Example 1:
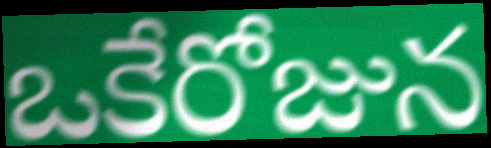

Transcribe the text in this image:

ఒకేరోజున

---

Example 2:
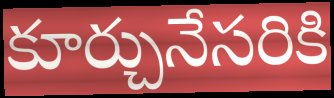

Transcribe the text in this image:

కూర్చునేసరికి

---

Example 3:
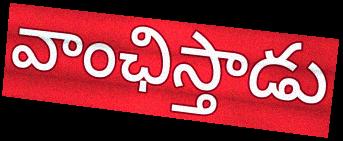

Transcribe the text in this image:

వాంఛిస్తాడు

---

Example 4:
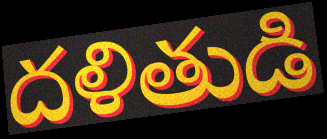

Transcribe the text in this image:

దళితుడి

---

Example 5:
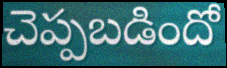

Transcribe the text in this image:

చెప్పబడిందో